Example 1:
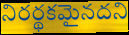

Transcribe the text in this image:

నిరర్థకమైనదని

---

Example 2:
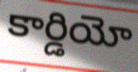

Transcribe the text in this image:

కార్డియో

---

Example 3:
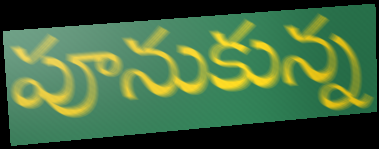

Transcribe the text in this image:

పూనుకున్న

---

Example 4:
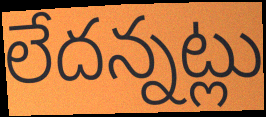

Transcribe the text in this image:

లేదన్నట్లు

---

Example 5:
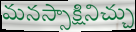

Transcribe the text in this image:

మనస్సాక్షినిచ్చు